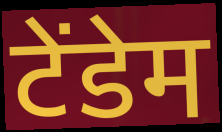
टेंडेम